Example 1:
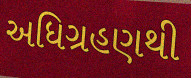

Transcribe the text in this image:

અધિગ્રહણથી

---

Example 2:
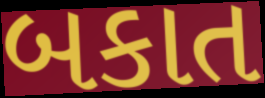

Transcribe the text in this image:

બકાત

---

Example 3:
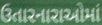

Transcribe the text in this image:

ઉતારનારાઓમાં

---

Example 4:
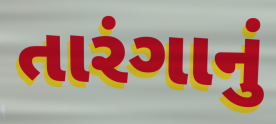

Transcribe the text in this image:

તારંગાનું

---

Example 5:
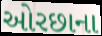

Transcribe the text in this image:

ઓરછાના